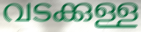
വടക്കുള്ള